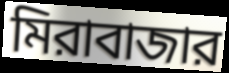
মিরাবাজার